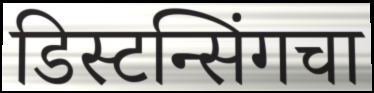
डिस्टन्सिंगचा